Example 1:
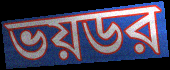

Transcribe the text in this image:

ভয়ডর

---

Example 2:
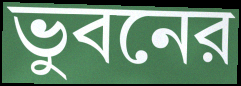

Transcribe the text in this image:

ভুবনের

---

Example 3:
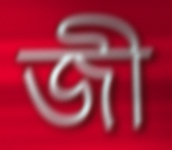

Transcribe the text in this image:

জী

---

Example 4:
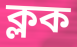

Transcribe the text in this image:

ক্লক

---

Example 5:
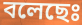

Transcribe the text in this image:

বলেছেঃ